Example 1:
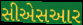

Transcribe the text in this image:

સીએસઆર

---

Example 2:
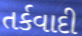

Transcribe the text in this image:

તર્કવાદી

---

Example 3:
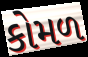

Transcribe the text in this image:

કોમળ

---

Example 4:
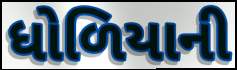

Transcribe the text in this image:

ધોળિયાની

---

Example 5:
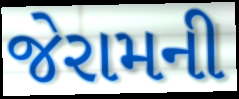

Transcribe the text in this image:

જેરામની